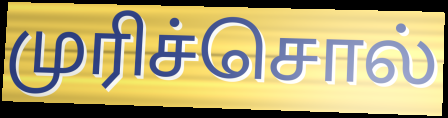
முரிச்சொல்